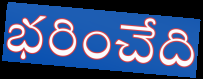
భరించేది